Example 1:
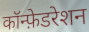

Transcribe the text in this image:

कॉन्फ़ेडरेशन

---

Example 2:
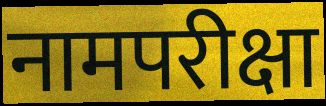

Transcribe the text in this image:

नामपरीक्षा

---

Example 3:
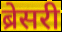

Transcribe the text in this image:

ब्रेसरी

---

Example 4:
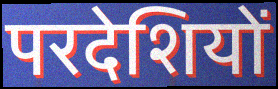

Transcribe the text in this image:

परदेशियों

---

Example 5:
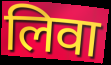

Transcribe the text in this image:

लिवा